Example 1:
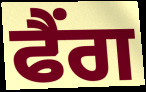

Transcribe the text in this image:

ਫੈਂਗ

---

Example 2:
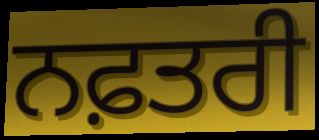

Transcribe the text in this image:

ਨਫ਼ਤਰੀ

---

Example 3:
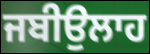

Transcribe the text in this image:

ਜਬੀਉਲਾਹ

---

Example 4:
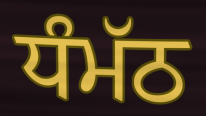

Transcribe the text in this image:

ਧੰਮੱਠ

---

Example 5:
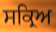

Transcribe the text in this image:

ਸਕ੍ਰਿਅ